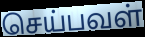
செய்பவள்